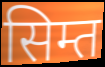
सिम्त